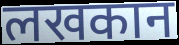
लखकान